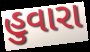
હુવારા